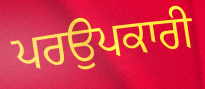
ਪਰਉਪਕਾਰੀ